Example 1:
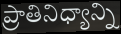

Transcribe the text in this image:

ప్రాతినిధ్యాన్ని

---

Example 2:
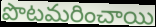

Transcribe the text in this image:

పొటమరించాయి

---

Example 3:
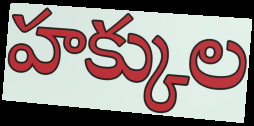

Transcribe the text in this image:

హక్కుల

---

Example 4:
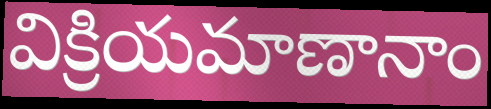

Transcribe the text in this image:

విక్రియమాణానాం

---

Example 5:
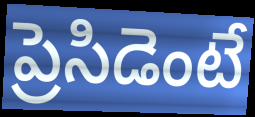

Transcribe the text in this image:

ప్రెసిడెంటే